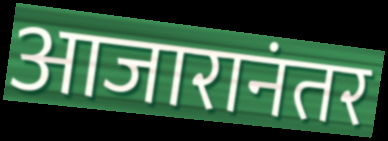
आजारानंतर